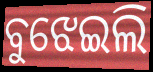
ବୁଝେଇଲି